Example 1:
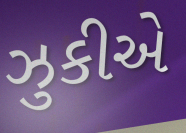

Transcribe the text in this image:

ઝુકીએ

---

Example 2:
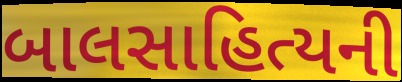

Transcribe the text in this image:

બાલસાહિત્યની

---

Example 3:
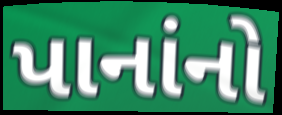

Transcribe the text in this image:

પાનાંનો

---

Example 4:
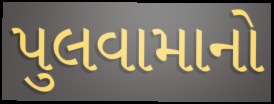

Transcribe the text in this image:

પુલવામાનો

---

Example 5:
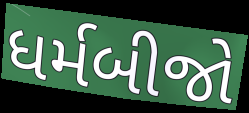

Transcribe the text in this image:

ધર્મબીજો